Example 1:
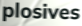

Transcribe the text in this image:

plosives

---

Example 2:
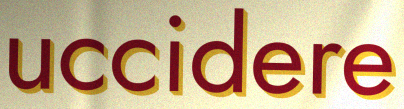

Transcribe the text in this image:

uccidere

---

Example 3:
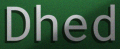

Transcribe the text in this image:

Dhed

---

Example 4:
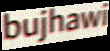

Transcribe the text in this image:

bujhawi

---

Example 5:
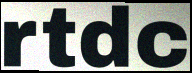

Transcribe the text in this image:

rtdc